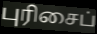
புரிசைப்